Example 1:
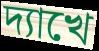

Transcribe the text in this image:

দ্যাখে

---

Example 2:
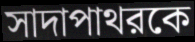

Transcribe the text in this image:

সাদাপাথরকে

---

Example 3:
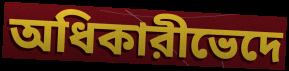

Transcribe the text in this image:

অধিকারীভেদে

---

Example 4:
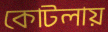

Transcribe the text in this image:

কোটলায়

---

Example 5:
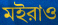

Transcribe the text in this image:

মইরাও